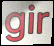
gir